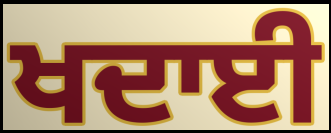
ਖਦਾਈ